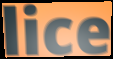
lice